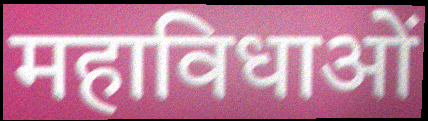
महाविधाओं